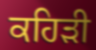
ਕਹਿੜੀ